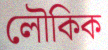
লৌকিক